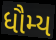
ધૌમ્ય